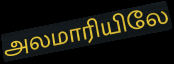
அலமாரியிலே